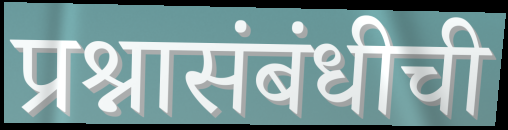
प्रश्नासंबंधीची